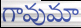
గావుమా